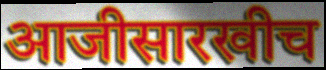
आजीसारखीच